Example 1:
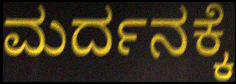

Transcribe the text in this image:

ಮರ್ದನಕ್ಕೆ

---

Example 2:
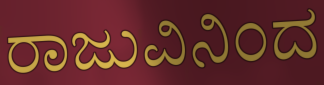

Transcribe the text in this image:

ರಾಜುವಿನಿಂದ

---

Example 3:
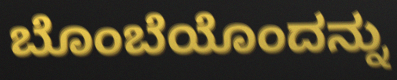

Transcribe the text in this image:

ಬೊಂಬೆಯೊಂದನ್ನು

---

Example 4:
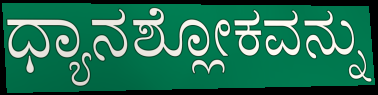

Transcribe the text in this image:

ಧ್ಯಾನಶ್ಲೋಕವನ್ನು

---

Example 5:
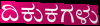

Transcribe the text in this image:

ದಿಕುಕಗಳು